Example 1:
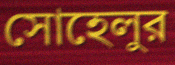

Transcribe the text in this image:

সোহেলুর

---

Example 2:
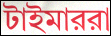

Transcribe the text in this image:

টাইমাররা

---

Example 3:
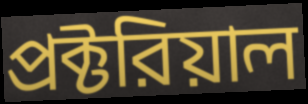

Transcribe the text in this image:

প্রক্টরিয়াল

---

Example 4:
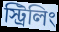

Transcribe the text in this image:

স্ট্রিলিং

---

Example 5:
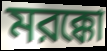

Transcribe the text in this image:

মরক্কো